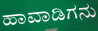
ಹಾವಾಡಿಗನು